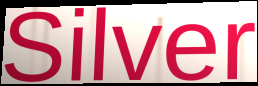
Silver